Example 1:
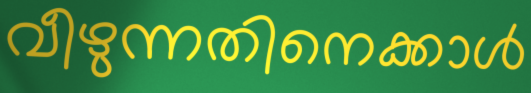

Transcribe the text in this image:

വീഴുന്നതിനെക്കാൾ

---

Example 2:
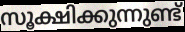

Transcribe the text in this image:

സൂക്ഷിക്കുന്നുണ്ട്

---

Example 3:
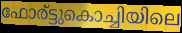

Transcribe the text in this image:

ഫോര്ട്ടുകൊച്ചിയിലെ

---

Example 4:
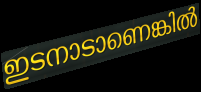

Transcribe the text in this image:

ഇടനാടാണെങ്കിൽ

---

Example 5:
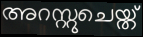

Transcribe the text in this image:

അറസ്റ്റുചെയ്ത്